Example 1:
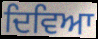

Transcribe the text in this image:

ਦਿਵਿਆ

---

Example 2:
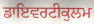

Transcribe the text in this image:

ਡਾਇਵਰਟੀਕੁਲਮ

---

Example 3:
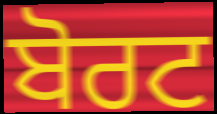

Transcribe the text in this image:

ਬੋਰਟ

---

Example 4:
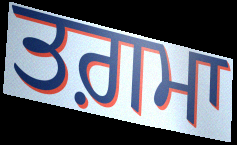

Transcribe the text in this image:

ਤਗ਼ਮਾ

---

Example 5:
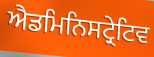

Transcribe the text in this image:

ਐਡਮਿਨਿਸਟ੍ਰੇਟਿਵ